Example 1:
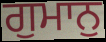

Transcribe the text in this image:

ਗੁਮਾਨੁ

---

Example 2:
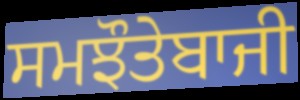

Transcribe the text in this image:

ਸਮਝੌਤੇਬਾਜੀ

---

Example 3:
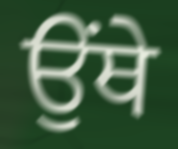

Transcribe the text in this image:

ਉੰਥੇ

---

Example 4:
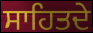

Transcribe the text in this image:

ਸਾਹਿਤਦੇ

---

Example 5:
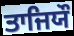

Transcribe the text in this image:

ਤਾਜਿਯੌ